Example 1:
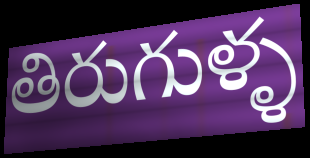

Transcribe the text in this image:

తిరుగుళ్ళ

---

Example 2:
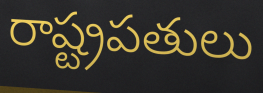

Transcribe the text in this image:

రాష్ట్రపతులు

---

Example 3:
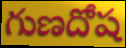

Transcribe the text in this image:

గుణదోష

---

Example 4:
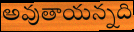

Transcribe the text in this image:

అవుతాయన్నది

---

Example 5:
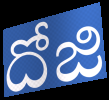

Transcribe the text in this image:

దోజి